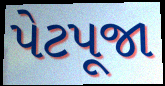
પેટપૂજા